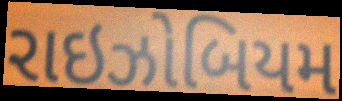
રાઇઝોબિયમ